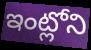
ఇంట్లోని